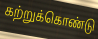
கற்றுக்கொண்டு